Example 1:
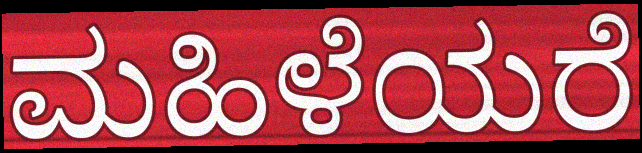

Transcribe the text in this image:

ಮಹಿಳೆಯರೆ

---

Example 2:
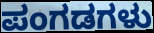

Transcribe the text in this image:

ಪಂಗಡಗಳು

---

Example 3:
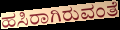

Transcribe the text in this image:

ಹಸಿರಾಗಿರುವಂತೆ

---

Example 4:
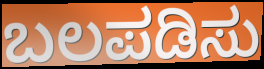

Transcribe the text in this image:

ಬಲಪಡಿಸು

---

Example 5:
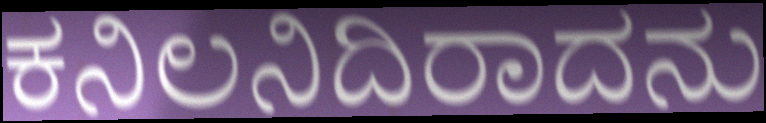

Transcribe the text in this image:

ಕನಿಲನಿದಿರಾದನು